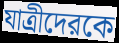
যাত্রীদেরকে